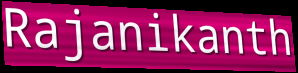
Rajanikanth